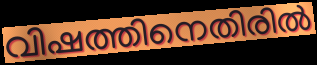
വിഷത്തിനെതിരിൽ